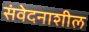
संवेदनाशील